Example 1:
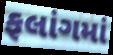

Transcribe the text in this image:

ફલાંગમાં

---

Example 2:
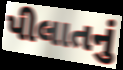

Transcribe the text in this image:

પીલાતનું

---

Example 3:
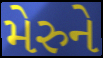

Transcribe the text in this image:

મેરુને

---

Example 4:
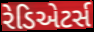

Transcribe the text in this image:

રેડિએટર્સ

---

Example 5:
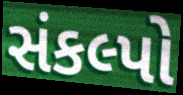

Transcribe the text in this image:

સંકલ્પો